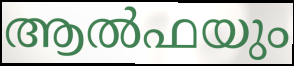
ആൽഫയും